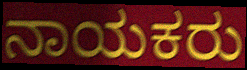
ನಾಯಕರು